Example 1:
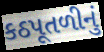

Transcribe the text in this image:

કઠપૂતળીનું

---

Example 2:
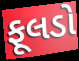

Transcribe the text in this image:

ફૂલડો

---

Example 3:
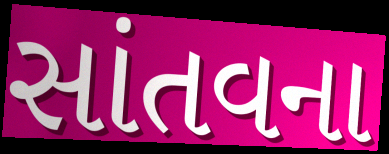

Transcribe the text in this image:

સાંતવના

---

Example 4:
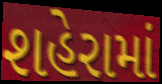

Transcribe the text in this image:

શહેરામાં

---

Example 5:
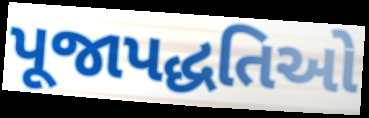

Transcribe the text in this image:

પૂજાપદ્ધતિઓ